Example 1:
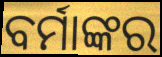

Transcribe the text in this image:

ବର୍ମାଙ୍କର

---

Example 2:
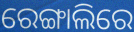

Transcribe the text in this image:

ରେଙ୍ଗାଲିରେ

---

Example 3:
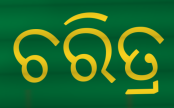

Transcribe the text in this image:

ଚରିତ୍ର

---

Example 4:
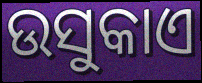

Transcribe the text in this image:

ଉସୁକାଏ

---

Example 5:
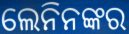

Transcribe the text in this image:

ଲେନିନଙ୍କର